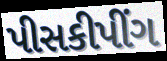
પીસકીપીંગ